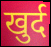
खुर्द